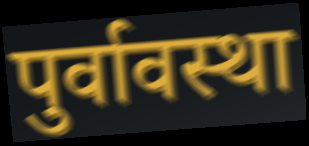
पुर्वावस्था